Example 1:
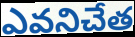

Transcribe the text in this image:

ఎవనిచేత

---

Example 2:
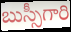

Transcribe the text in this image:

బుస్సీగారి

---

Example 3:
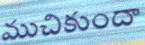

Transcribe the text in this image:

ముచికుందా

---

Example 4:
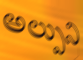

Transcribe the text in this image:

అల్పుని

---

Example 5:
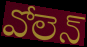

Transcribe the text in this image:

వోలెన్